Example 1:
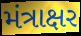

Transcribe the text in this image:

મંત્રાક્ષર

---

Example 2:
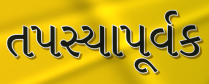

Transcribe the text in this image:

તપસ્યાપૂર્વક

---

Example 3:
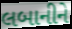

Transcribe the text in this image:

લબાનીને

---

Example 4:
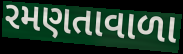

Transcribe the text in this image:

રમણતાવાળા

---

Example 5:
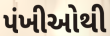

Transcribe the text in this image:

પંખીઓથી